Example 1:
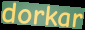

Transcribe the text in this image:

dorkar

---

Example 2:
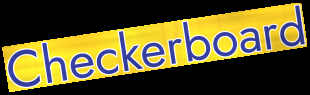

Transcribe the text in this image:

Checkerboard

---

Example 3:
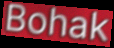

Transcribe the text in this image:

Bohak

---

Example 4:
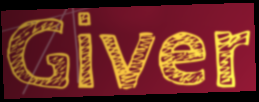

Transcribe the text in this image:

Giver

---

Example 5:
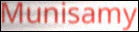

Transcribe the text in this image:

Munisamy